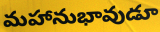
మహానుభావుడూ